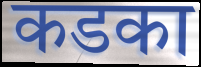
कडका